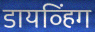
डायव्हिंग